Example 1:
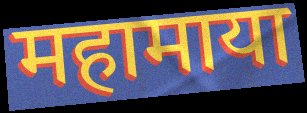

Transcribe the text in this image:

महामाया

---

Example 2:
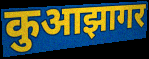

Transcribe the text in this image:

कुआझागर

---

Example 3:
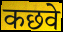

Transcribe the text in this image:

कछवे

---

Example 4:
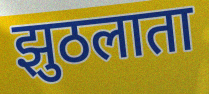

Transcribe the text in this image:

झुठलाता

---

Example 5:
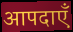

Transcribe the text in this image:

आपदाएँ